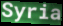
Syria